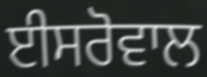
ਈਸਰੋਵਾਲ